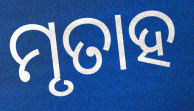
ମୃତାହ